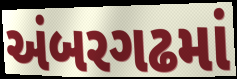
અંબરગઢમાં